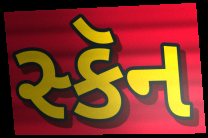
સ્કૅન